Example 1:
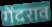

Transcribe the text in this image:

गेंदराव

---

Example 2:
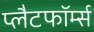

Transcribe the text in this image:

प्लैटफॉर्म्स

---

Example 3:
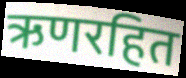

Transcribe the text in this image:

ऋणरहित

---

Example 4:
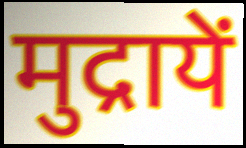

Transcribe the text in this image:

मुद्रायें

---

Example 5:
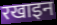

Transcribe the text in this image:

रखाइन